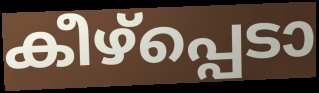
കീഴ്പ്പെടാ